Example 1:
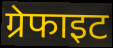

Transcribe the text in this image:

ग्रेफाइट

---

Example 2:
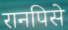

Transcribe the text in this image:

रानपिसे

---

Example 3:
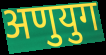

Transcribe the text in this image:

अणुयुग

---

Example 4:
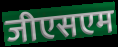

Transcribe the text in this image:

जीएसएम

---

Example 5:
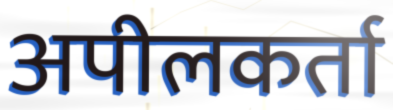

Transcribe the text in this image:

अपीलकर्ता